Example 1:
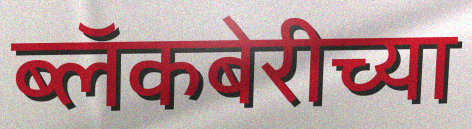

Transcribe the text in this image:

ब्लॅकबेरीच्या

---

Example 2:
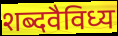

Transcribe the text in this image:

शब्दवैविध्य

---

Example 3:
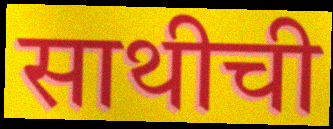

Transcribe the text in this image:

साथीची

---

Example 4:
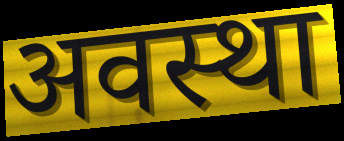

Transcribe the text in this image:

अवस्था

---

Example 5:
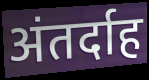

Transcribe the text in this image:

अंतर्दाह